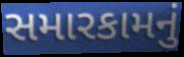
સમારકામનું